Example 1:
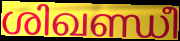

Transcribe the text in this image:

ശിഖണ്ഡീ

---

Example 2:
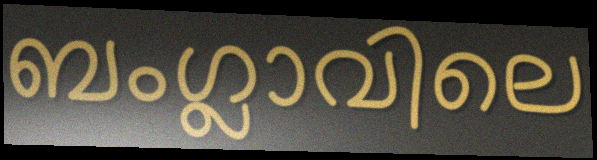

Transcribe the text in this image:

ബംഗ്ലാവിലെ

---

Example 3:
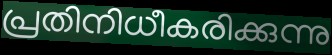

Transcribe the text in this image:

പ്രതിനിധീകരിക്കുന്നു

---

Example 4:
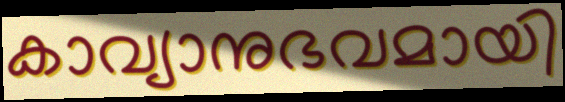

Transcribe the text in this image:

കാവ്യാനുഭവമായി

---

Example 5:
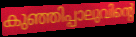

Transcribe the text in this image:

കുഞ്ഞിപ്പാലുവിന്റെ